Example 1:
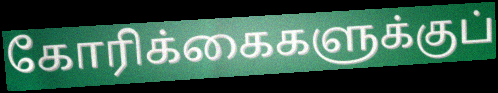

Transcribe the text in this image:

கோரிக்கைகளுக்குப்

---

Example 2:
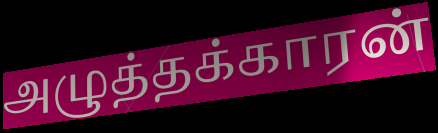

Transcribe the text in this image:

அழுத்தக்காரன்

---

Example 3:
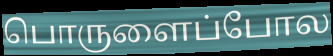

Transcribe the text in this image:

பொருளைப்போல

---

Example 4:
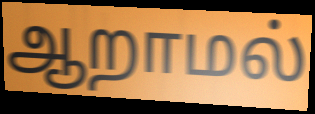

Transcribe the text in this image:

ஆறாமல்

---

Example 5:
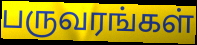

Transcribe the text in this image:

பருவரங்கள்